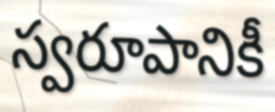
స్వరూపానికీ